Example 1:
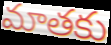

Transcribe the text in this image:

మాతకు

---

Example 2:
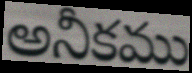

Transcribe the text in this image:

అనీకము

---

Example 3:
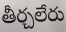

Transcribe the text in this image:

తీర్చలేరు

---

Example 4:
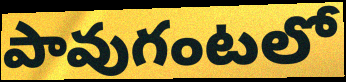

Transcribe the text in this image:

పావుగంటలో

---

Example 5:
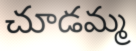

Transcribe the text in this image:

చూడమ్మ